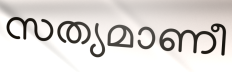
സത്യമാണീ